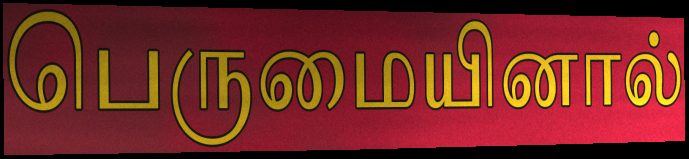
பெருமையினால்